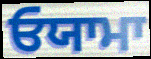
ਓਯਾਮਾ